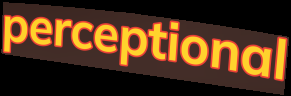
perceptional